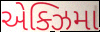
એક્ઝિમા